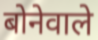
बोनेवाले